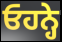
ਓਹਨ੍ਹੇ